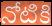
నోటికి